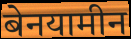
बेनयामीन